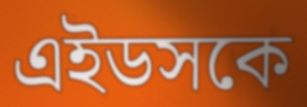
এইডসকে